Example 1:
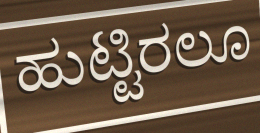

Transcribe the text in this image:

ಹುಟ್ಟಿರಲೂ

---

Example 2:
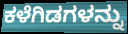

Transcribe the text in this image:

ಕಳೆಗಿಡಗಳನ್ನು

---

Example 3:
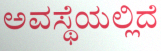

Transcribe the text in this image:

ಅವಸ್ಥೆಯಲ್ಲಿದೆ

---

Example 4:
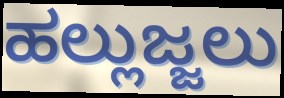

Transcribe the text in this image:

ಹಲ್ಲುಜ್ಜಲು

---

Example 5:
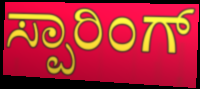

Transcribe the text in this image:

ಸ್ಪಾರಿಂಗ್